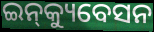
ଇନ୍‌କ୍ୟୁବେସନ